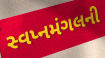
સ્વપ્નમંગલની